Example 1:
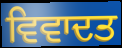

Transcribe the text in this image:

ਵਿਵਾਦਤ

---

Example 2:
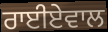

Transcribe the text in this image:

ਰਾਈਏਵਾਲ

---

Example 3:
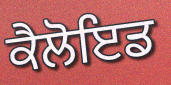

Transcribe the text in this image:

ਕੈਲੋਇਡ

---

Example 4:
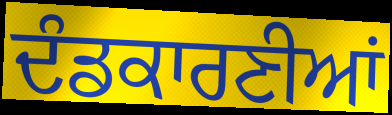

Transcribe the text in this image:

ਦੰਡਕਾਰਣੀਆਂ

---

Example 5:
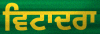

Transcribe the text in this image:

ਵਿਟਾਦਰਾ